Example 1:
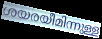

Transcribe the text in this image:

ശയരയീമിന്നുള്ള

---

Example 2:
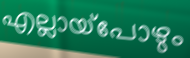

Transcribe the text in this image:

എല്ലായ്‌പോഴും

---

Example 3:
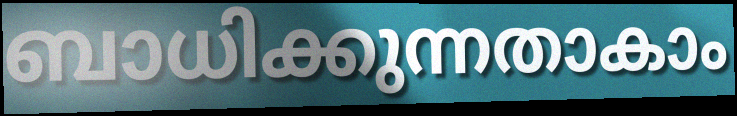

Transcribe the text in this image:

ബാധിക്കുന്നതാകാം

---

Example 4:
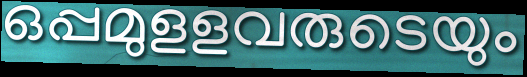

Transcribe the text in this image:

ഒപ്പമുളളവരുടെയും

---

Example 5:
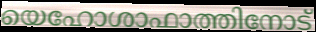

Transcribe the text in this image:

യെഹോശാഫാത്തിനോട്